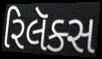
રિલૅક્સ